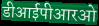
डीआईपीआरओ